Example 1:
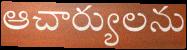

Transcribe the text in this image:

ఆచార్యులను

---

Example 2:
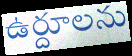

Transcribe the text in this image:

ఉర్దూలను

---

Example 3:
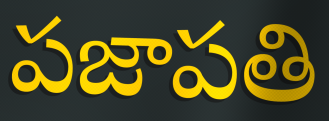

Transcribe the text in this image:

పజాపతి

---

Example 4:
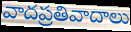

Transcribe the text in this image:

వాదప్రతివాదాలు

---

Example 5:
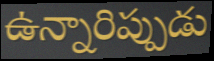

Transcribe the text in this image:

ఉన్నారిప్పుడు